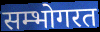
सम्भोगरत